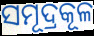
ସମୂଦ୍ରକୂଳ